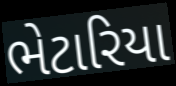
ભેટારિયા